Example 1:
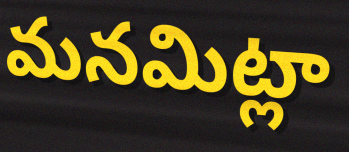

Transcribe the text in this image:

మనమిట్లా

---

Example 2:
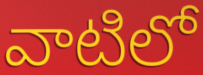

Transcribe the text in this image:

వాటిలో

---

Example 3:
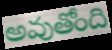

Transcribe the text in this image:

అవుతోంది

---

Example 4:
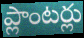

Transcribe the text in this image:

ప్లాంటర్లు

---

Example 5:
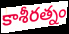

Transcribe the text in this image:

కాశీరత్నం